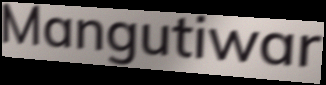
Mangutiwar